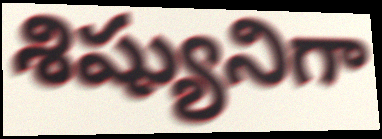
శిష్యునిగా